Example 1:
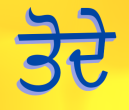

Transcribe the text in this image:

ਤੋਦੇ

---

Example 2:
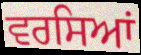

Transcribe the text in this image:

ਵਰਸਿਆਂ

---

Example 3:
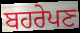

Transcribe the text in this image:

ਬਹਰੇਪਣ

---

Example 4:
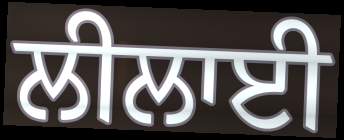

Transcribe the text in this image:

ਲੀਲਾਈ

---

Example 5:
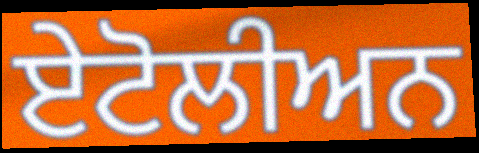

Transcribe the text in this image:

ਏਟੋਲੀਅਨ